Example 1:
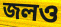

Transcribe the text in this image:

জলও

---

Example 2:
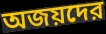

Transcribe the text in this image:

অজয়দের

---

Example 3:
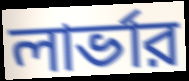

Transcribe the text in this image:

লার্ভার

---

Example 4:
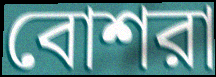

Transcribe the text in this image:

বোশরা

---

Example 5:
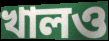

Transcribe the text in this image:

খালও